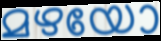
മഴയോ